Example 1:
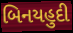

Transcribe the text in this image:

બિનયહુદી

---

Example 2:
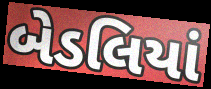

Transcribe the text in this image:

બેડલિયાં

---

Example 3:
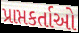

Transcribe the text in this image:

પ્રાપ્તકર્તાઓ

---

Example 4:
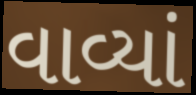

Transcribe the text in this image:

વાવ્યાં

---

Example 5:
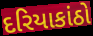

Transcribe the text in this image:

દરિયાકાંઠો